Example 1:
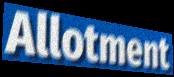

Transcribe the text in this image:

Allotment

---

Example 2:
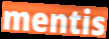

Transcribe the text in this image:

mentis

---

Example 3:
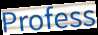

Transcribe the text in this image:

Profess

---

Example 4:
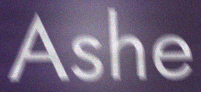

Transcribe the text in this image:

Ashe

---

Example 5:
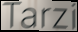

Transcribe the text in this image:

Tarzi